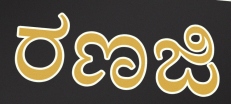
ರಣಜಿ